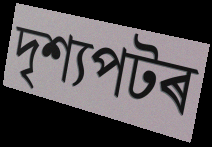
দৃশ্যপটৰ